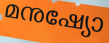
മനുഷ്യോ